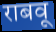
राबवू